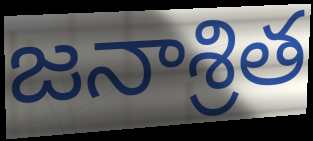
జనాశ్రిత